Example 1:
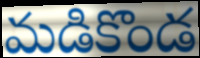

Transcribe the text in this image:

మడికొండ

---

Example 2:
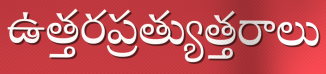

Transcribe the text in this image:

ఉత్తరప్రత్యుత్తరాలు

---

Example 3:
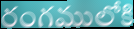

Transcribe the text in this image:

రంగములోకి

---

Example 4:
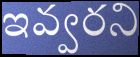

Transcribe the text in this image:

ఇవ్వరని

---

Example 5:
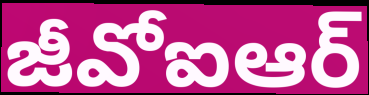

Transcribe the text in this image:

జీవోఐఆర్